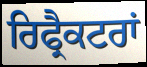
ਰਿਫ੍ਰੈਕਟਰਾਂ